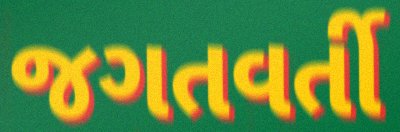
જગતવર્તી